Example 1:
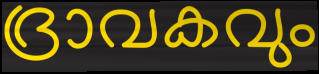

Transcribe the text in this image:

ദ്രാവകവും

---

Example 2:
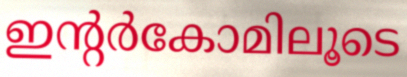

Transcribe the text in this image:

ഇന്റർകോമിലൂടെ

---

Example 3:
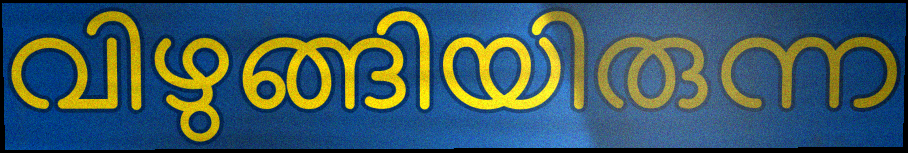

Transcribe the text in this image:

വിഴുങ്ങിയിരുന്ന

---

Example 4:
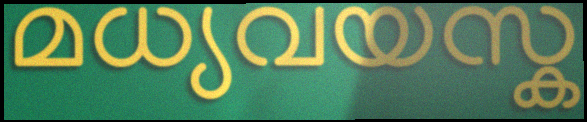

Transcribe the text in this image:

മധ്യവയസ്ക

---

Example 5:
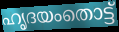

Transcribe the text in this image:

ഹൃദയംതൊട്ട്